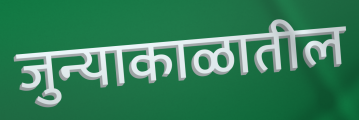
जुन्याकाळातील